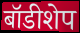
बॉडीशेप